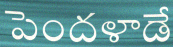
పెందళాడే